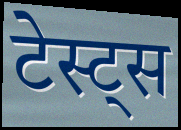
टेस्ट्स